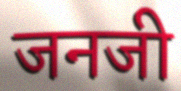
जनजी